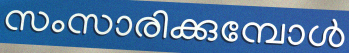
സംസാരിക്കുമ്പോൾ